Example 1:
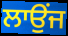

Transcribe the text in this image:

ਲਾਉਂਜ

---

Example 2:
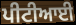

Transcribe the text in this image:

ਪੀਟੀਆਈ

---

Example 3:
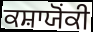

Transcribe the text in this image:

ਕਸ਼ਾਯੋਂਕੀ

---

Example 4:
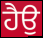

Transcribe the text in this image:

ਹੈਉ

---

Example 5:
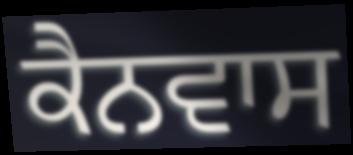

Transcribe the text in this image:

ਕੈਨਵਾਸ